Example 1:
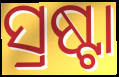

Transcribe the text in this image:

ସ୍ରଷ୍ଟା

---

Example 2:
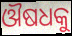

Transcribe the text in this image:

ଔଷଧକୁ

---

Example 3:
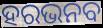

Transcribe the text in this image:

ହରଭନବ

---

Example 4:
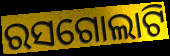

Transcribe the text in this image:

ରସଗୋଲାଟି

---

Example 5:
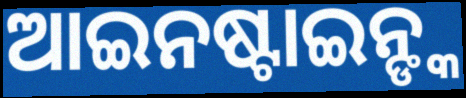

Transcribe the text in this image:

ଆଇନଷ୍ଟାଇନ୍ଙ୍କ